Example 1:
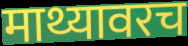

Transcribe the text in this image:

माथ्यावरच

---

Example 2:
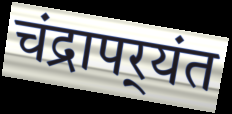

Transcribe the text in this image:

चंद्रापर्यंत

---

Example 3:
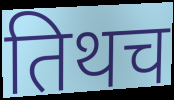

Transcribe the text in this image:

तिथच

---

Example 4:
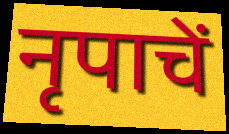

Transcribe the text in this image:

नृपाचें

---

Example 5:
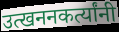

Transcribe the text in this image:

उत्खननकर्त्यांनी